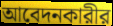
আবেদনকারীর